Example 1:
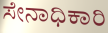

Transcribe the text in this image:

ಸೇನಾಧಿಕಾರಿ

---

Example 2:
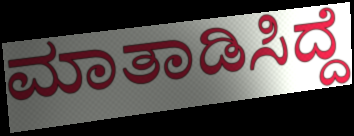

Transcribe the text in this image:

ಮಾತಾಡಿಸಿದ್ದೆ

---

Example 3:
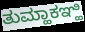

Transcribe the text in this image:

ತುಮ್ಹಾಕಞ್ಹಿ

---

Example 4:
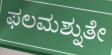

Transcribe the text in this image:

ಫಲಮಶ್ನುತೇ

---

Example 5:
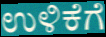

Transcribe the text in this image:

ಉಳಿಕೆಗೆ